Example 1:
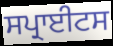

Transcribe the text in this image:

ਸਪ੍ਰਾਈਟਸ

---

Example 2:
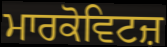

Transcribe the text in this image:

ਮਾਰਕੋਵਿਟਜ਼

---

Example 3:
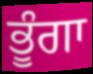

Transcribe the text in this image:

ਭੂੰਗਾ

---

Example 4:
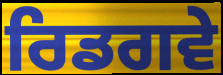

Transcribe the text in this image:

ਰਿਡਗਵੇ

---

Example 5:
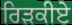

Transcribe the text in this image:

ਰਿੜਕੀਏ